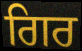
ਗਿਰ